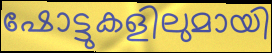
ഷോട്ടുകളിലുമായി